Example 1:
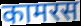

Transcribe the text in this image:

कामरस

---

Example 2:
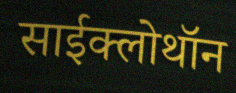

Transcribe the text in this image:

साईक्लोथॉन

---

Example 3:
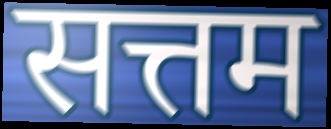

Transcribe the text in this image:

सत्तम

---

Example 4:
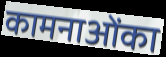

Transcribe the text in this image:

कामनाओंका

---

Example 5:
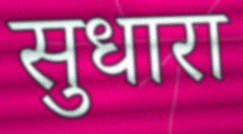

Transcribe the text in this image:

सुधारा